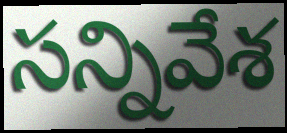
సన్నివేశ